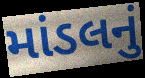
માંડલનું